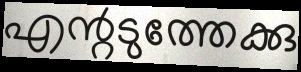
എന്റടുത്തേക്കു